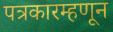
पत्रकारम्हणून